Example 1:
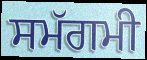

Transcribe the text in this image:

ਸਮੱਗਮੀ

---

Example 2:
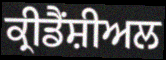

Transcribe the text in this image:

ਕ੍ਰੀਡੈਂਸ਼ੀਅਲ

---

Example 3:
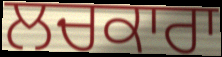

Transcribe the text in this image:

ਲਚਕਾਰਾ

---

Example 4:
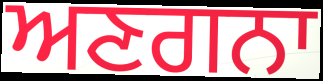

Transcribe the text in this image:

ਅਣਗਨਾ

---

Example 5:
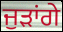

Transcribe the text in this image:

ਜੁੜਾਂਗੇ